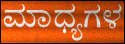
ಮಾಧ್ಯಗಳ